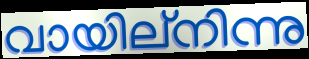
വായില്നിന്നു